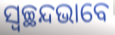
ସ୍ୱଚ୍ଛନ୍ଦଭାବେ